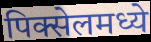
पिक्सेलमध्ये